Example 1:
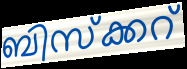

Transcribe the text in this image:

ബിസ്ക്കറ്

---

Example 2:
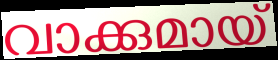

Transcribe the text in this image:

വാക്കുമായ്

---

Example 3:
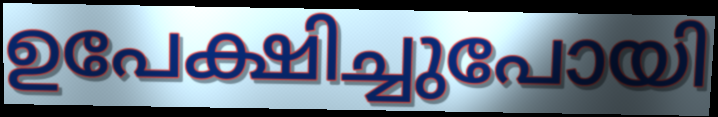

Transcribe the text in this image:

ഉപേക്ഷിച്ചുപോയി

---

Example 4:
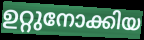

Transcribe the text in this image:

ഉറ്റുനോക്കിയ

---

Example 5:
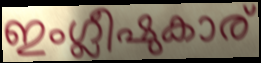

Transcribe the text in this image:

ഇംഗ്ലീഷുകാര്